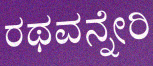
ರಥವನ್ನೇರಿ